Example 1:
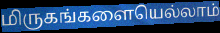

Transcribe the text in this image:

மிருகங்களையெல்லாம்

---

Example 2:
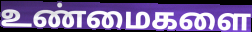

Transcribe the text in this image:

உண்மைகளை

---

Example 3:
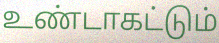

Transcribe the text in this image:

உண்டாகட்டும்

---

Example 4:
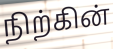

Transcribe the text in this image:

நிற்கின்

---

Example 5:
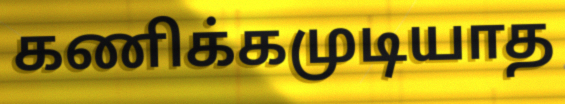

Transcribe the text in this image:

கணிக்கமுடியாத